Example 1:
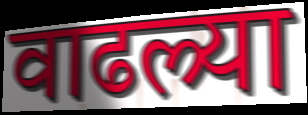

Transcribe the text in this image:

वाढल्या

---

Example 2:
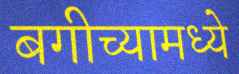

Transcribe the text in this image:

बगीच्यामध्ये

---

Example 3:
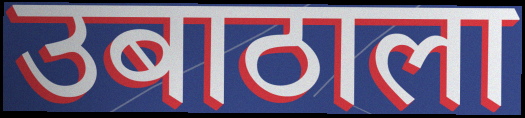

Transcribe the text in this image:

उबाठाला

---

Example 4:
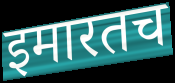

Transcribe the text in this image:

इमारतच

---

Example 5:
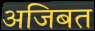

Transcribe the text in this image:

अजिबत